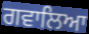
ਗਵਾਲਿਆ